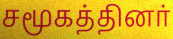
சமூகத்தினர்